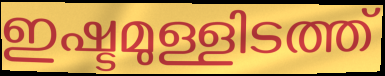
ഇഷ്ടമുള്ളിടത്ത്